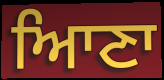
ਆਿਣਾ